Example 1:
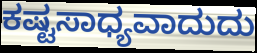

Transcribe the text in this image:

ಕಷ್ಟಸಾಧ್ಯವಾದುದು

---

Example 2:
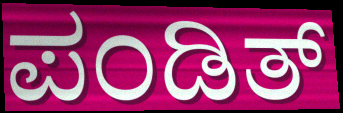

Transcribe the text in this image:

ಪಂಡಿತ್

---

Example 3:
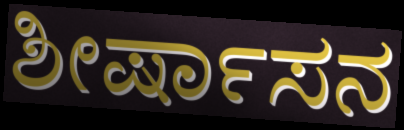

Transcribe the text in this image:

ಶೀರ್ಷಾಸನ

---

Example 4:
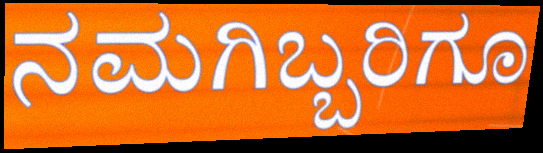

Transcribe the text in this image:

ನಮಗಿಬ್ಬರಿಗೂ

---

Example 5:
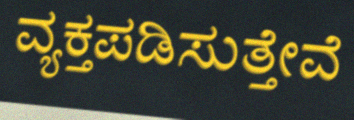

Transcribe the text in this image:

ವ್ಯಕ್ತಪಡಿಸುತ್ತೇವೆ